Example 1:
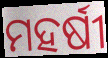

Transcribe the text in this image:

ମହର୍ଷୀ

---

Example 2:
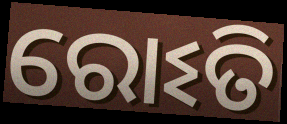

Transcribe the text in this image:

ରୋଽତି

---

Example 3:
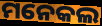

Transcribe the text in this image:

ମନେକଲ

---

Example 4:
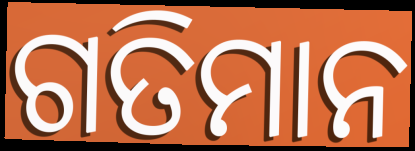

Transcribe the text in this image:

ଗତିମାନ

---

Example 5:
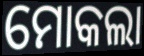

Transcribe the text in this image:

ମୋକଲା